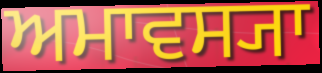
ਅਮਾਵਸ੍ਯਾ